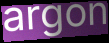
argon